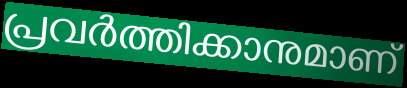
പ്രവർത്തിക്കാനുമാണ്